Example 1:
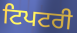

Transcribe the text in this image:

ਟਿਪਟਰੀ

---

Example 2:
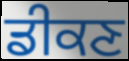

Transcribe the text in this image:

ਡੀਕਣ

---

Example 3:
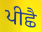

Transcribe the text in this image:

ਪੀਛੈ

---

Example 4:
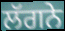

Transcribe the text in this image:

ਲੱਗਨੇ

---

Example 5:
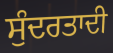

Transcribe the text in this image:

ਸੁੰਦਰਤਾਦੀ